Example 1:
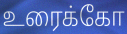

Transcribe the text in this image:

உரைக்கோ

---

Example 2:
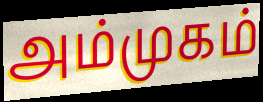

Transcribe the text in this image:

அம்முகம்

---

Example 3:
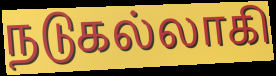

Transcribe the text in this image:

நடுகல்லாகி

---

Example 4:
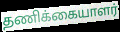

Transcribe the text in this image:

தணிக்கையாளர்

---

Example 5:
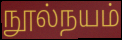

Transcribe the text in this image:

நூல்நயம்